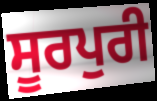
ਸੂਰਪੁਰੀ